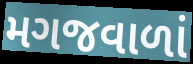
મગજવાળાં